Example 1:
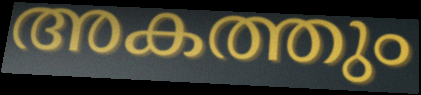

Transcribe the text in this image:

അകത്തും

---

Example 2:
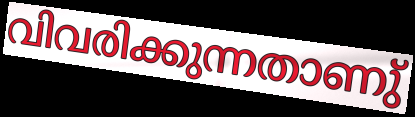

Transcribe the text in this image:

വിവരിക്കുന്നതാണു്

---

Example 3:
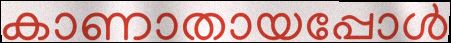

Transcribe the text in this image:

കാണാതായപ്പോൾ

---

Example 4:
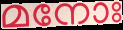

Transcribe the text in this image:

മനോഃ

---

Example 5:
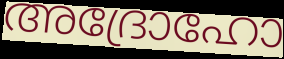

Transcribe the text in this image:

അദ്രോഹോ